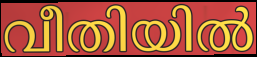
വീതിയിൽ